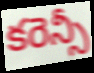
కరెన్సీ